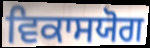
ਵਿਕਾਸਯੋਗ